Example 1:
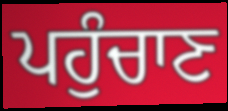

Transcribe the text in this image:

ਪਹੁੰਚਾਣ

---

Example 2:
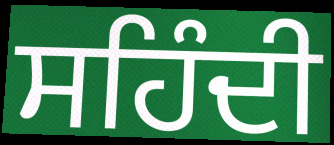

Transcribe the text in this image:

ਸਹਿੰਦੀ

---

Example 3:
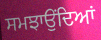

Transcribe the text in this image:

ਸਮਝਾਉਂਦਿਆਂ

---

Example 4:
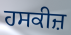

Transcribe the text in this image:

ਹਸਕੀਜ਼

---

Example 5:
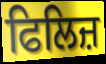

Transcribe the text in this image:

ਫਿਲਿਜ਼